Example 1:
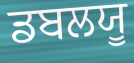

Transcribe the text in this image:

ਡਬਲਯੂ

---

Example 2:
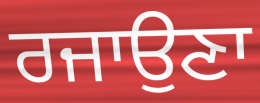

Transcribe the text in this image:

ਰਜਾਉਣਾ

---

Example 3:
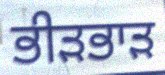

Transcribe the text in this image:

ਭੀੜਭਾੜ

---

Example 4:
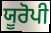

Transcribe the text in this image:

ਯੂਰੋਪੀ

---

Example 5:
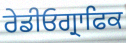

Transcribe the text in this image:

ਰੇਡੀਓਗ੍ਰਾਫਿਕ